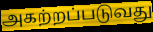
அகற்றப்படுவது